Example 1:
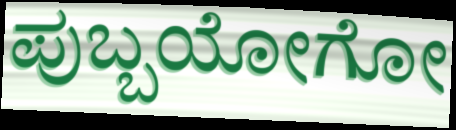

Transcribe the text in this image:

ಪುಬ್ಬಯೋಗೋ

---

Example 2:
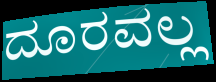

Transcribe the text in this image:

ದೂರವಲ್ಲ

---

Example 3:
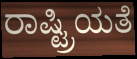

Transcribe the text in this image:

ರಾಷ್ಟ್ರಿಯತೆ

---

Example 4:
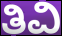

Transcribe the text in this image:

ತಿವಿ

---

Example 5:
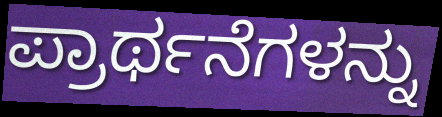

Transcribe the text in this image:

ಪ್ರಾರ್ಥನೆಗಳನ್ನು